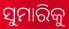
ସୁମାରିକୁ